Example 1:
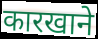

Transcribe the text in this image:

कारखाने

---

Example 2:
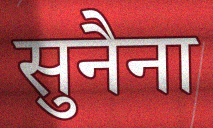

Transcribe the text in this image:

सुनैना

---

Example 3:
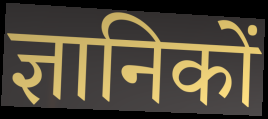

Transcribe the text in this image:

ज्ञानिकों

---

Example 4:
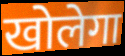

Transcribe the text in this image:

खोलेगा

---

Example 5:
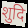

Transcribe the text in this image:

शुदि